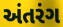
અંતરંગ